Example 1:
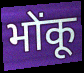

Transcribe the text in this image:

भोंकू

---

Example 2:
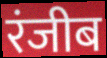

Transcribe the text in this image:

रंजीब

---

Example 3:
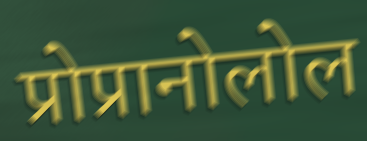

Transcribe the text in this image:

प्रोप्रानोलोल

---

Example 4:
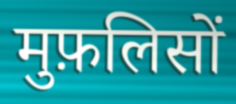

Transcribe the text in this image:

मुफ़लिसों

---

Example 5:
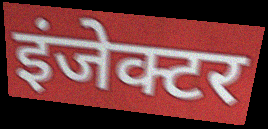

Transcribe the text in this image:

इंजेक्टर